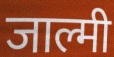
जाल्मी